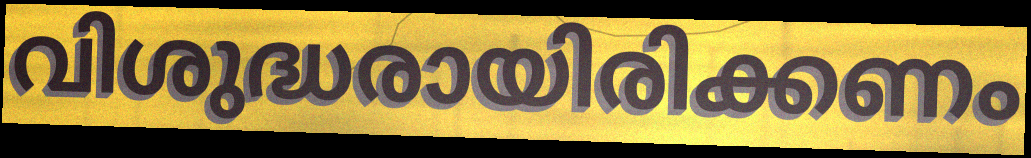
വിശുദ്ധരായിരിക്കണം